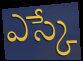
ఎస్కే